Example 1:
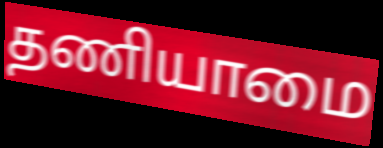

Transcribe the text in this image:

தணியாமை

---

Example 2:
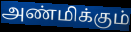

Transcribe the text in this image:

அண்மிக்கும்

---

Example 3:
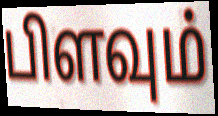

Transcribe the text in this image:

பிளவும்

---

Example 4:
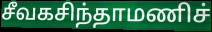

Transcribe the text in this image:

சீவகசிந்தாமணிச்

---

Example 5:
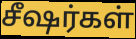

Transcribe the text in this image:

சீஷர்கள்